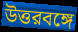
উত্তরবঙ্গে